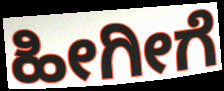
ಹೀಗೀಗೆ